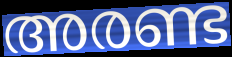
അരണ്ട